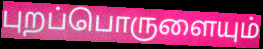
புறப்பொருளையும்